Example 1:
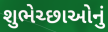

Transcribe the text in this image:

શુભેચ્છાઓનું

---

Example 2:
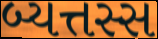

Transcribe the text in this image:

બ્યત્તસ્સ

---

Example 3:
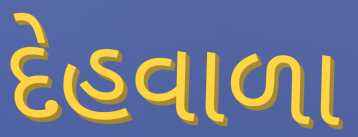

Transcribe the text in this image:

દેહવાળા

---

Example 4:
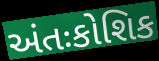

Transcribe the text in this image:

અંતઃકોશિક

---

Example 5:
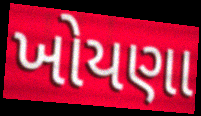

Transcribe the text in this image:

ખોયણા